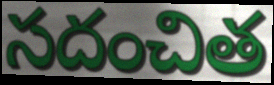
సదంచిత